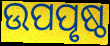
ଉପପୃଷ୍ଠ